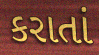
કરાતાં